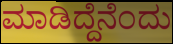
ಮಾಡಿದ್ದೆನೆಂದು